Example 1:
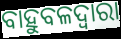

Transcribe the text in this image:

ବାହୁବଳଦ୍ୱାରା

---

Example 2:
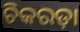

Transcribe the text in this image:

ଚିକରଡ଼ା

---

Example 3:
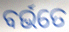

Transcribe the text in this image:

ବର୍ଭତେ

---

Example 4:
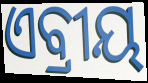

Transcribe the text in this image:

ଏବ୍ରୀୟ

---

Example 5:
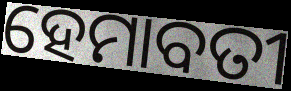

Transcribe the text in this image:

ହେମାବତୀ